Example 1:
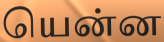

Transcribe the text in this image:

யென்ன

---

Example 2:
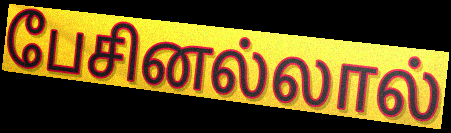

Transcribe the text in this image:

பேசினல்லால்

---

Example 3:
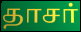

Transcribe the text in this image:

தாசர்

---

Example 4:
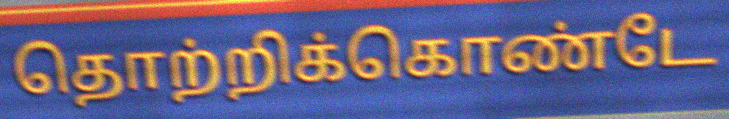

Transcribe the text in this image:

தொற்றிக்கொண்டே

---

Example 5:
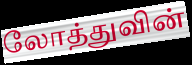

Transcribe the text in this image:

லோத்துவின்